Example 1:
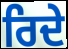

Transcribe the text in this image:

ਰਿਦੇ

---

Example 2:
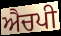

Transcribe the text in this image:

ਐਚਪੀ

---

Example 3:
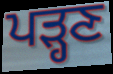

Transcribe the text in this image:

ਪੜ੍ਹਣ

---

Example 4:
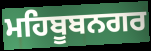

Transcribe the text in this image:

ਮਹਿਬੂਬਨਗਰ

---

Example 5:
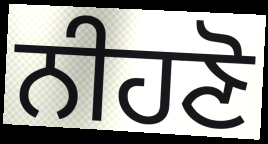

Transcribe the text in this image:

ਨੀਹਣੋ